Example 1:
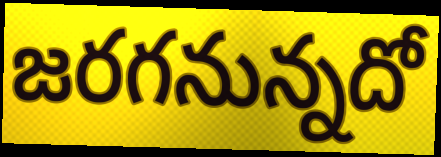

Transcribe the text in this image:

జరగనున్నదో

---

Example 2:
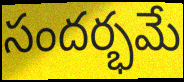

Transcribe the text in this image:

సందర్భమే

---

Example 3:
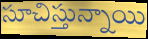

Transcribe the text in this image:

సూచిస్తున్నాయి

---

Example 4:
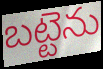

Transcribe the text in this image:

బట్టెను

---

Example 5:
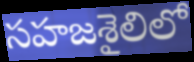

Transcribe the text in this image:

సహజశైలిలో